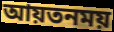
আয়তনময়